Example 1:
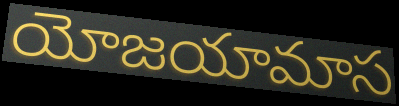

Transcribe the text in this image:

యోజయామాస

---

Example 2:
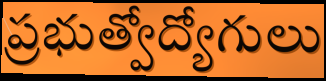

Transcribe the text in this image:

ప్రభుత్వోద్యోగులు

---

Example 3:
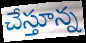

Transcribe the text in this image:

చేస్తూన్న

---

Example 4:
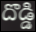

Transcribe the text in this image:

దొడ్డి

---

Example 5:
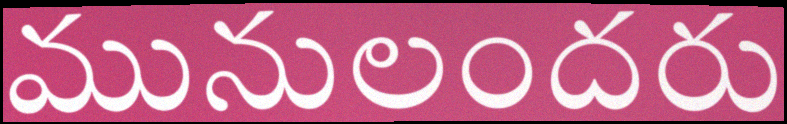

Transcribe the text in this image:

మునులందరు